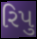
રિપુ